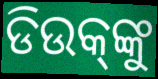
ଡିଉକ୍‌ଙ୍କୁ